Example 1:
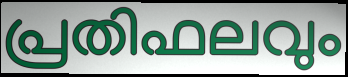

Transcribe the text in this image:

പ്രതിഫലവും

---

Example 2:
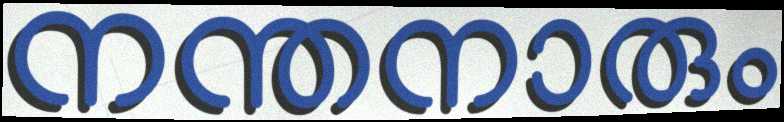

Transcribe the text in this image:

നന്തനാരും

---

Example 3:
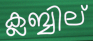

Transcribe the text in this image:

ക്ലബ്ബില്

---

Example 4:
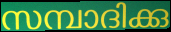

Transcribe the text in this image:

സമ്പാദിക്കു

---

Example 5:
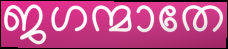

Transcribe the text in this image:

ജഗന്മാതേ